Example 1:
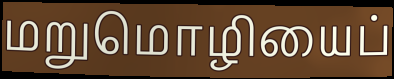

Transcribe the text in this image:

மறுமொழியைப்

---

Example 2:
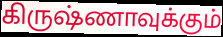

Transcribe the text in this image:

கிருஷ்ணாவுக்கும்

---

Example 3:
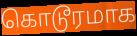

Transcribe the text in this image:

கொடூரமாக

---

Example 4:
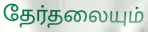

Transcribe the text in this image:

தேர்தலையும்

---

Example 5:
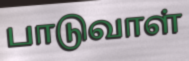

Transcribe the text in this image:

பாடுவாள்